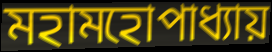
মহামহোপাধ্যায়